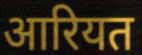
आरियत